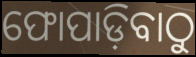
ଫୋପାଡ଼ିବାଠୁ